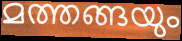
മത്തങ്ങയും